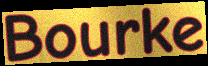
Bourke